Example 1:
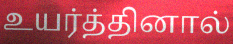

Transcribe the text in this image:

உயர்த்தினால்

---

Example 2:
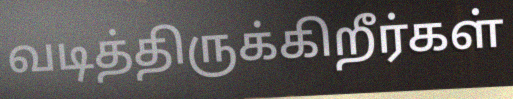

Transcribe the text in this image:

வடித்திருக்கிறீர்கள்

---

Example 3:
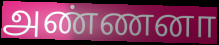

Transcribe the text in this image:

அண்ணனா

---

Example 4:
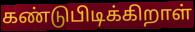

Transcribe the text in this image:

கண்டுபிடிக்கிறாள்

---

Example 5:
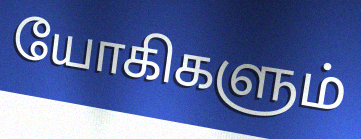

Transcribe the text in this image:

யோகிகளும்